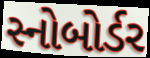
સ્નોબોર્ડર